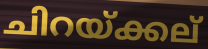
ചിറയ്ക്കല്